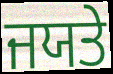
ਜਯਤੇ